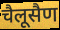
चैलूसैण